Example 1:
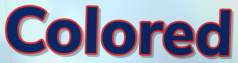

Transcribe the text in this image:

Colored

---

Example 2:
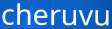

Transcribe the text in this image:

cheruvu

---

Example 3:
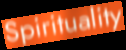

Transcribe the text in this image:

Spirituality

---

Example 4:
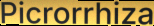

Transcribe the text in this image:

Picrorrhiza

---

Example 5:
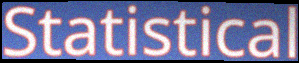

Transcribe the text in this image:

Statistical